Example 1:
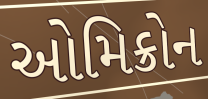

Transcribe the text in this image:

ઓમિક્રોન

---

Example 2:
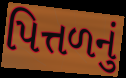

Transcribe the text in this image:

પિત્તળનું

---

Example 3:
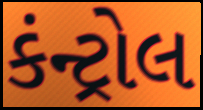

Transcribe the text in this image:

કંન્ટ્રોલ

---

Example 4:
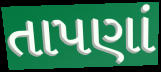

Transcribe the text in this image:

તાપણાં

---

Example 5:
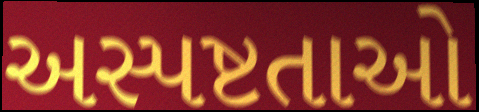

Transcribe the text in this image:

અસ્પષ્ટતાઓ